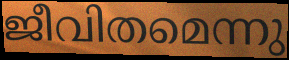
ജീവിതമെന്നു